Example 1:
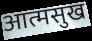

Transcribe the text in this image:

आत्मसुख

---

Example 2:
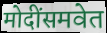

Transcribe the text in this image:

मोदींसमवेत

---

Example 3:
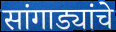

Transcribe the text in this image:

सांगाड्यांचे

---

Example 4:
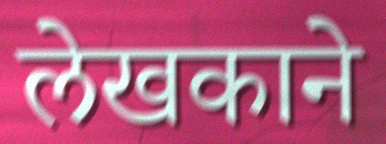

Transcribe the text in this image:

लेखकाने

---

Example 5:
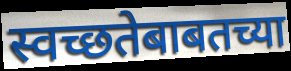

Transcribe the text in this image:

स्वच्छतेबाबतच्या